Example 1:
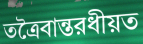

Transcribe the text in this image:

তত্রৈবান্তরধীয়ত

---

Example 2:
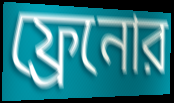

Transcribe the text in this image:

ফ্রেনোর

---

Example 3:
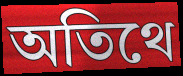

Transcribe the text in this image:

অতিথে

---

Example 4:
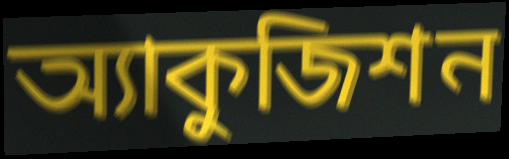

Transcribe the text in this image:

অ্যাকুজিশন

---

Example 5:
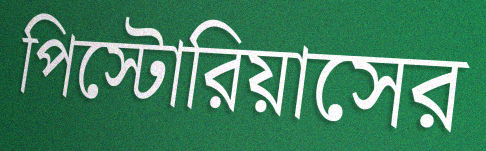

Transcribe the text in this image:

পিস্টোরিয়াসের